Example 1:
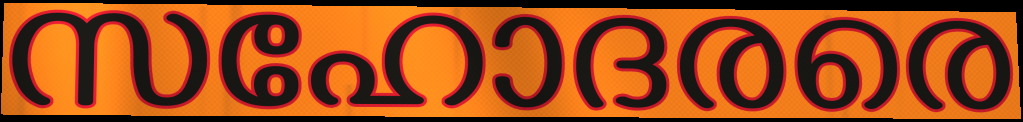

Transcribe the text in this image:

സഹോദരരെ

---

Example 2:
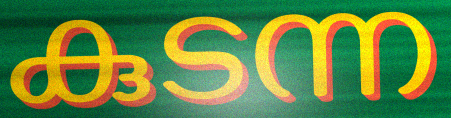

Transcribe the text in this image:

കുടന്ന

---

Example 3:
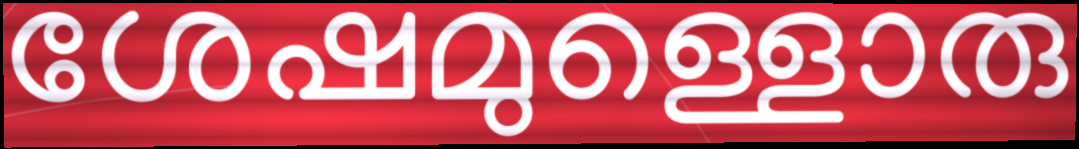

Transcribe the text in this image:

ശേഷമുള്ളൊരു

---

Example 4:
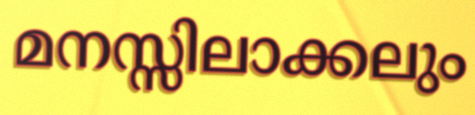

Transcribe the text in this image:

മനസ്സിലാക്കലും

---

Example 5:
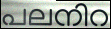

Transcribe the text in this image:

പലനിറ